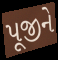
પૂજીને